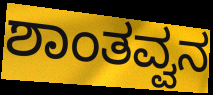
ಶಾಂತವ್ವನ